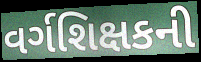
વર્ગશિક્ષકની